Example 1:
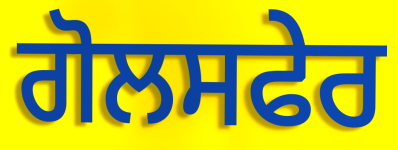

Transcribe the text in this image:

ਗੋਲਸਫੇਰ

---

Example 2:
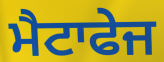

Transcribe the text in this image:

ਮੈਟਾਫੇਜ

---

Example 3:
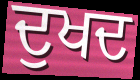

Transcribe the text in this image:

ਦੁਖਦ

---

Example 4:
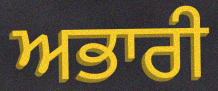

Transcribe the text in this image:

ਅਭਾਰੀ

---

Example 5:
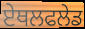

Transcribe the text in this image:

ਏਥਲਫਲੇਡ